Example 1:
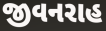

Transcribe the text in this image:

જીવનરાહ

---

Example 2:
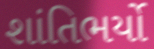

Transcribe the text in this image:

શાંતિભર્યો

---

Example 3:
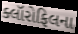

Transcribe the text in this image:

ક્લૉરોફિલના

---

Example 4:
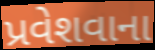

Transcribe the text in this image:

પ્રવેશવાના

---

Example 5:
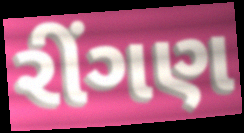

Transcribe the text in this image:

રીંગણ